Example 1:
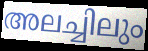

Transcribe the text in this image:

അലച്ചിലും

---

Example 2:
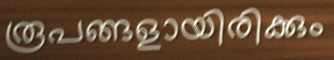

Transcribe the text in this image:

രൂപങ്ങളായിരിക്കും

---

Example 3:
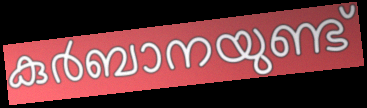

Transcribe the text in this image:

കുർബാനയുണ്ട്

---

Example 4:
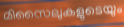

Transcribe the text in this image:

മിസൈലുകളുടെയും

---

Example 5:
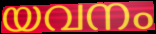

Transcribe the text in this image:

യവനം